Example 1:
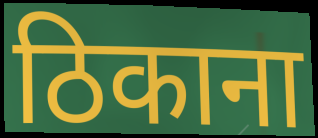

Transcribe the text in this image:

ठिकाना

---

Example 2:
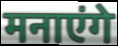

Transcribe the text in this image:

मनाएंगे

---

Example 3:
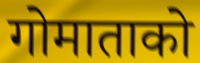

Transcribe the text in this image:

गोमाताको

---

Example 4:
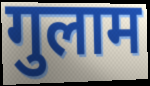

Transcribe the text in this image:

गुलाम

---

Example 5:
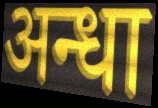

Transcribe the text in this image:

अन्धा